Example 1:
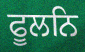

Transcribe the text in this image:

ਫੂਲਨਿ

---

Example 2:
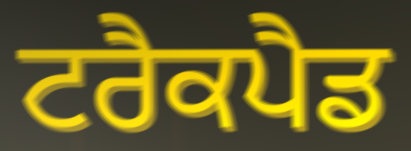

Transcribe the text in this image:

ਟਰੈਕਪੈਡ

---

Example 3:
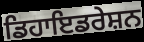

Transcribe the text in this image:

ਡਿਹਾਇਡਰੇਸ਼ਨ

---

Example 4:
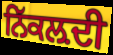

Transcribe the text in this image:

ਨਿੱਕਲ਼ਦੀ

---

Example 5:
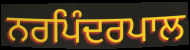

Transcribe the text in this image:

ਨਰਪਿੰਦਰਪਾਲ